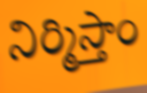
నిర్మిస్తాం